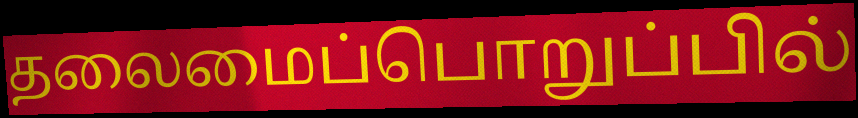
தலைமைப்பொறுப்பில்